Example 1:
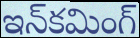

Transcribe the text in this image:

ఇన్‌కమింగ్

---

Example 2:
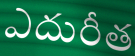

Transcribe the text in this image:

ఎదురీత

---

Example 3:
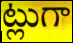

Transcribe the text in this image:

ట్లుగా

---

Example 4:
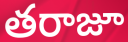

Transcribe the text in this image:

తరాజూ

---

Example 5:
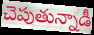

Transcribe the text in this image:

చెపుతున్నాడీ